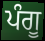
ਪੰਗੂ